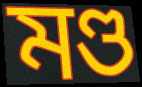
মণ্ড